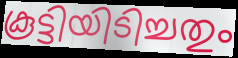
കൂട്ടിയിടിച്ചതും